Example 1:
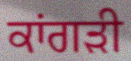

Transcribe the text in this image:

ਕਾਂਗੜੀ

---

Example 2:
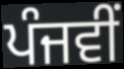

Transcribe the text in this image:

ਪੰਜਵੀਂ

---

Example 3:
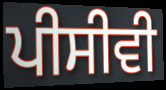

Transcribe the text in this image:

ਪੀਸੀਵੀ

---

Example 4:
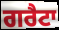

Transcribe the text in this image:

ਗਰੈਟਾ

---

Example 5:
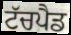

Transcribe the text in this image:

ਟੱਚਪੈਡ